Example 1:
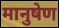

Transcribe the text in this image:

मानुषेण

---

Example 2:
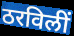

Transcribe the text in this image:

ठरविलीं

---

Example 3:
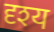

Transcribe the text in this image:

दृश्‍य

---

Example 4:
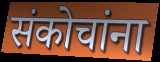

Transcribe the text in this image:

संकोचांना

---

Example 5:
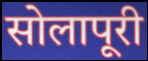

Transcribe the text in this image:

सोलापूरी